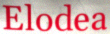
Elodea